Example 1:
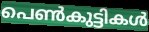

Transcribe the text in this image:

പെൺകുട്ടികൾ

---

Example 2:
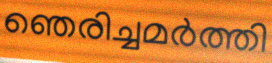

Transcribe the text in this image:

ഞെരിച്ചമർത്തി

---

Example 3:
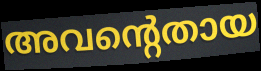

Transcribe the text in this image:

അവന്റെതായ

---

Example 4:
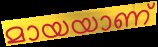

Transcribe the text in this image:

മായയാണ്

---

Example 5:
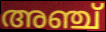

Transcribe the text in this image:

അഞ്ച്